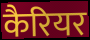
कैरियर